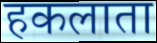
हकलाता